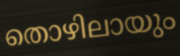
തൊഴിലായും